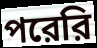
পরেরি